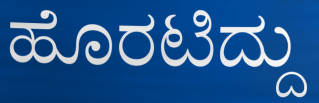
ಹೊರಟಿದ್ದು